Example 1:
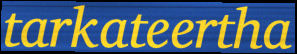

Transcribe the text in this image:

tarkateertha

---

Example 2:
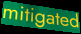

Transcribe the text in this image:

mitigated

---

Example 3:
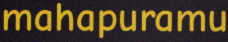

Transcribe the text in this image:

mahapuramu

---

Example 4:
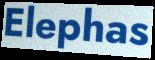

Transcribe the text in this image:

Elephas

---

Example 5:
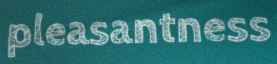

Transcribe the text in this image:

pleasantness